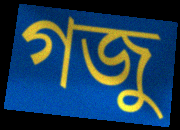
গজু